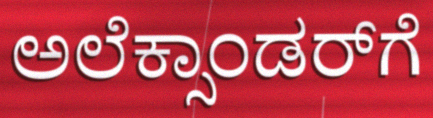
ಅಲೆಕ್ಸಾಂಡರ್‌ಗೆ